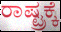
ರಾಷ್ಟ್ರಕ್ಕೆ